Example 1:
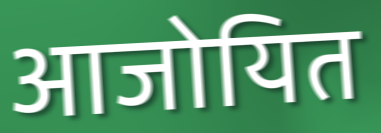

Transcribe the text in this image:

आजोयित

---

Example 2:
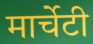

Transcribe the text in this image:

मार्चेटी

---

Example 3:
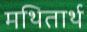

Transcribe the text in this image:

मथितार्थ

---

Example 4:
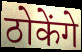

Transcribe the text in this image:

ठोकेंगे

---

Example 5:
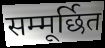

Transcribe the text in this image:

सम्मूर्छित